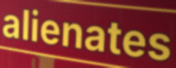
alienates